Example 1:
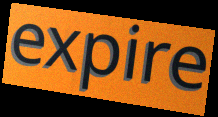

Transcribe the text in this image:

expire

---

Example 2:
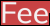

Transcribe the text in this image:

Fee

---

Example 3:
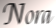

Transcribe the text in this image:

Nora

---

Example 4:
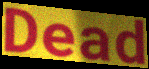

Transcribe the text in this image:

Dead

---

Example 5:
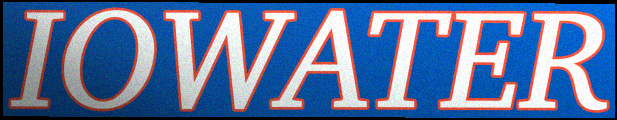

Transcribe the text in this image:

IOWATER